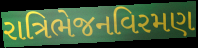
રાત્રિભેજનવિરમણ